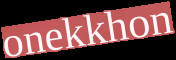
onekkhon